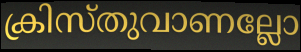
ക്രിസ്തുവാണല്ലോ